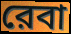
রেবা